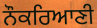
ਨੌਕਰਿਆਣੀ